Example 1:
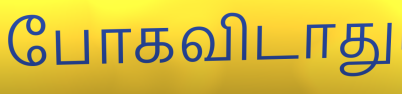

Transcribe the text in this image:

போகவிடாது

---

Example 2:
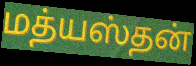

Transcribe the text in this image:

மத்யஸ்தன்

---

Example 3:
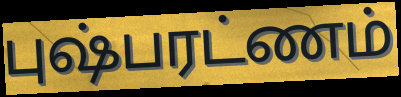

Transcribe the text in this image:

புஷ்பரட்ணம்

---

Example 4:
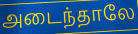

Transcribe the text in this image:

அடைந்தாலே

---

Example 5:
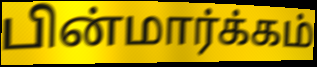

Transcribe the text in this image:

பின்மார்க்கம்